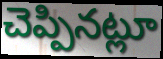
చెప్పినట్లూ